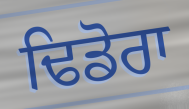
ਢਿਡੋਰਾ